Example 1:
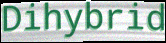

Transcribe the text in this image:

Dihybrid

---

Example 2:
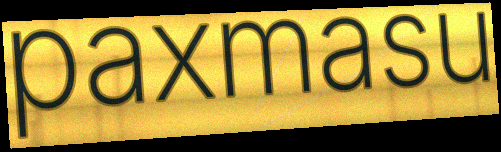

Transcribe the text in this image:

paxmasu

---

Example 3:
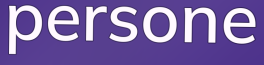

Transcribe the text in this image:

persone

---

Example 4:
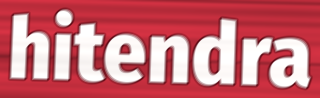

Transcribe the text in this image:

hitendra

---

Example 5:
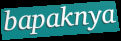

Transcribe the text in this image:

bapaknya